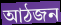
আঠজন